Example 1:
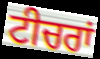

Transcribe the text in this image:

ਟੀਚਰਾਂ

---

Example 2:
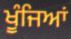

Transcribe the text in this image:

ਖੂੰਜਿਆਂ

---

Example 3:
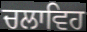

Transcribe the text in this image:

ਚਲਾਵਿਹ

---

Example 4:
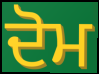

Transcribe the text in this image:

ਦੋਮ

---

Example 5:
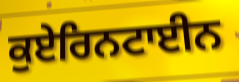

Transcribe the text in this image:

ਕੁਏਰਿਨਟਾਈਨ